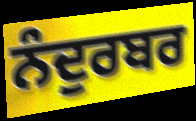
ਨੰਦੁਰਬਰ